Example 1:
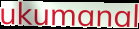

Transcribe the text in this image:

ukumanal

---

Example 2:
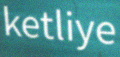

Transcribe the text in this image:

ketliye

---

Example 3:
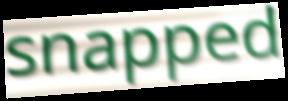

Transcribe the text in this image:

snapped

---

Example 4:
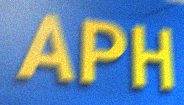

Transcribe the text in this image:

APH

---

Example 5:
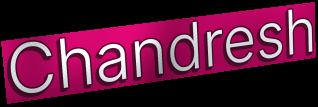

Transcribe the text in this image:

Chandresh